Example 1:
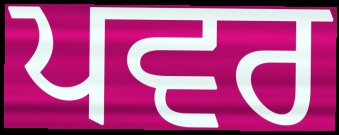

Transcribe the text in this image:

ਪਵਰ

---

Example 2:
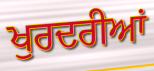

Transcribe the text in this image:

ਖੁਰਦਰੀਆਂ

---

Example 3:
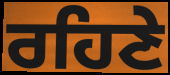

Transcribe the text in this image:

ਰਹਿਣੇ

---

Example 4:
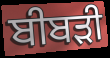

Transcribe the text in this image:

ਬੀਬੜੀ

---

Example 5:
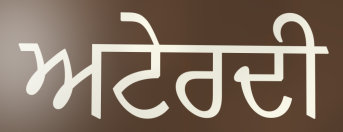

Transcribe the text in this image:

ਅਟੇਰਦੀ